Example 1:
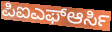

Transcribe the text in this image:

ಪಿಐಎಫ್ಆರ್ಸಿ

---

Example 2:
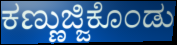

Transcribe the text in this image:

ಕಣ್ಣುಜ್ಜಿಕೊಂಡು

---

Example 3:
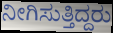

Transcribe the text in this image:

ನೀಗಿಸುತ್ತಿದ್ದರು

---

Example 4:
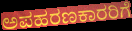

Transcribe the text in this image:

ಅಪಹರಣಕಾರರಿಗೆ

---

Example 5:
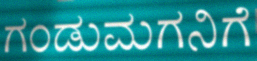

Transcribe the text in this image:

ಗಂಡುಮಗನಿಗೆ